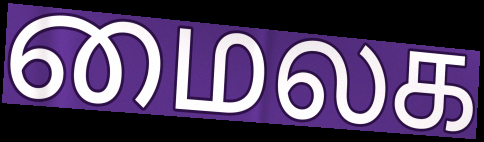
மைலக